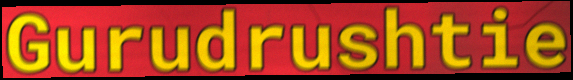
Gurudrushtie